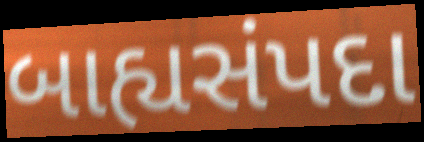
બાહ્યસંપદા